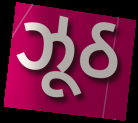
ઝૂઠ